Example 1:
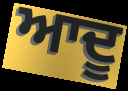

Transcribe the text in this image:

ਆਦੂ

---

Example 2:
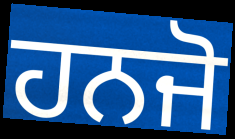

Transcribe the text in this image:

ਹਨਜੋ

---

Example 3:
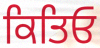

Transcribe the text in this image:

ਕਿਤਿਓ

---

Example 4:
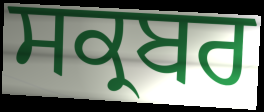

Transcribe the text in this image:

ਸਕ੍ਰਬਰ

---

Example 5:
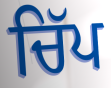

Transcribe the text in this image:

ਚਿੱਪ